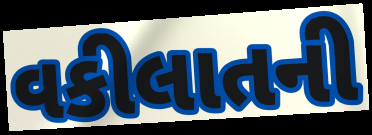
વકીલાતની